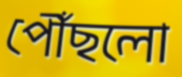
পৌঁছলো